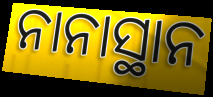
ନାନାସ୍ଥାନ